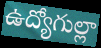
ఉద్యోగుల్లా